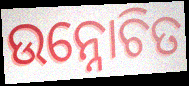
ଉନ୍ନୋଚିତ